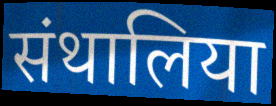
संथालिया